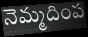
నెమ్మదింప